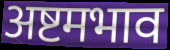
अष्टमभाव